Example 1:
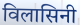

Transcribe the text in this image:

विलासिनी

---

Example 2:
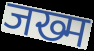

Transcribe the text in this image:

जख्म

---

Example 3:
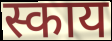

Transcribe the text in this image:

स्काय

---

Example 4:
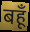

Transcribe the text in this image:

बहूँ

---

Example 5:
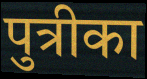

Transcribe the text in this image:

पुत्रीका